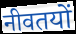
नीवतयों